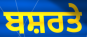
ਬਸ਼ਰਤੇ